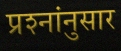
प्रश्नांनुसार